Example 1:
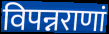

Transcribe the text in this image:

विपन्नराणां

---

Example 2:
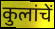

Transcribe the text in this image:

कुलांचें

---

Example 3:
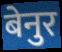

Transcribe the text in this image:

बेनुर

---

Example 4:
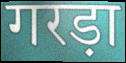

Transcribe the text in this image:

गरड़ा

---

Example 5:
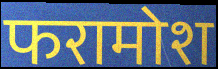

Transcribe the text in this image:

फरामोश